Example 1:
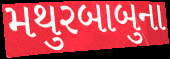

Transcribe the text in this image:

મથુરબાબુના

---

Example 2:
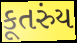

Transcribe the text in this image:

કૂતરુંય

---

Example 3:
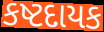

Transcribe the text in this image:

કષ્ટદાયક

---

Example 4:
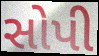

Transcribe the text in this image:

સોપી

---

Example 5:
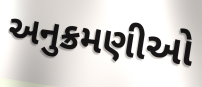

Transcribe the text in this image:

અનુક્રમણીઓ